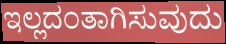
ಇಲ್ಲದಂತಾಗಿಸುವುದು